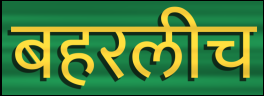
बहरलीच